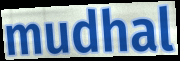
mudhal